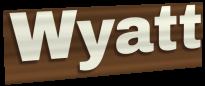
Wyatt